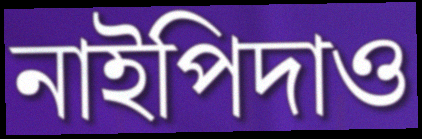
নাইপিদাও